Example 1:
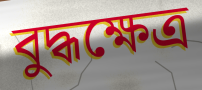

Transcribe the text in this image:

বুদ্ধক্ষেত্ৰ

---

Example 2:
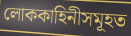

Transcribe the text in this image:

লোককাহিনীসমূহত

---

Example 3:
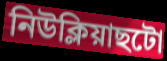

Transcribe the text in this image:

নিউক্লিয়াছটো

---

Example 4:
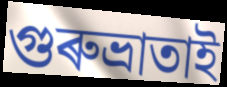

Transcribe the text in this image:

গুৰুভ্ৰাতাই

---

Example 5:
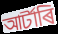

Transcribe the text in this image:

আৰ্টাৰি